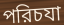
পরিচযা